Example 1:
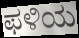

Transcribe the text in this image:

ಫಳಿಯ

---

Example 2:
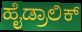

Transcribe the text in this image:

ಹೈಡ್ರಾಲಿಕ್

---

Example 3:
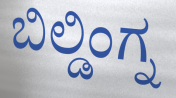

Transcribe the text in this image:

ಬಿಲ್ಡಿಂಗ್ನ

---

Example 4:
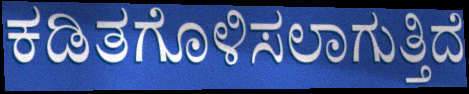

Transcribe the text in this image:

ಕಡಿತಗೊಳಿಸಲಾಗುತ್ತಿದೆ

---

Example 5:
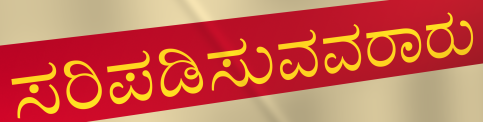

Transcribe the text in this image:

ಸರಿಪಡಿಸುವವರಾರು